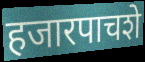
हजारपाचशे